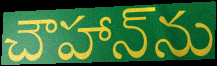
చౌహాన్‌ను